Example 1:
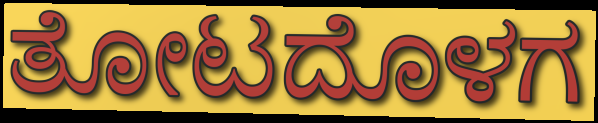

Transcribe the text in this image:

ತೋಟದೊಳಗ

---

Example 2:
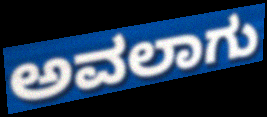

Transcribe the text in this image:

ಅವಲಾಗು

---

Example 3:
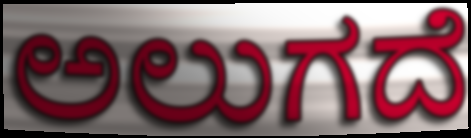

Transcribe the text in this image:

ಅಲುಗದೆ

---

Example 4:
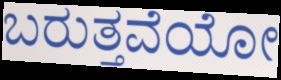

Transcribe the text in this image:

ಬರುತ್ತವೆಯೋ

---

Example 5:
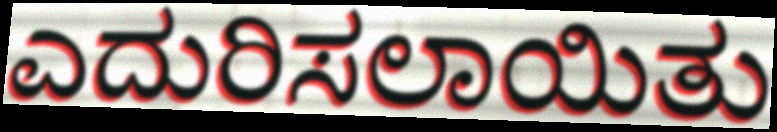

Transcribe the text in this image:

ಎದುರಿಸಲಾಯಿತು